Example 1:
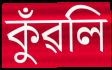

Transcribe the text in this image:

কুঁৱলি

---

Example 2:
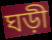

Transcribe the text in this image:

ঘড়ী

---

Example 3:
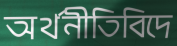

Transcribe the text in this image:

অৰ্থনীতিবিদে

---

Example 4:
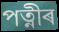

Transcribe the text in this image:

পত্নীৰ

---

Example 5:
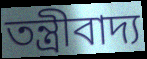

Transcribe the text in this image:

তন্ত্ৰীবাদ্য